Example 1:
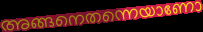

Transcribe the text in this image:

അങ്ങനെതന്നെയാണോ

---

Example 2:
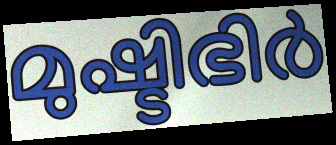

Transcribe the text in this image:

മുഷ്ടിഭിർ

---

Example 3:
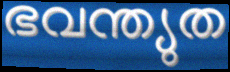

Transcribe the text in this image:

ഭവന്ത്യുത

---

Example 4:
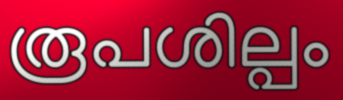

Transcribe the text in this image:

രൂപശില്പം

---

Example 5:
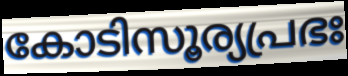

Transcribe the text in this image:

കോടിസൂര്യപ്രഭഃ